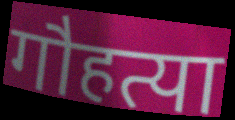
गौहत्या